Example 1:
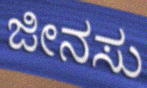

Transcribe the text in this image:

ಜೀನಸು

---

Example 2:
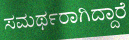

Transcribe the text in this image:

ಸಮರ್ಥರಾಗಿದ್ದಾರೆ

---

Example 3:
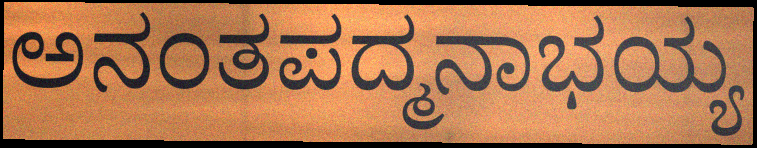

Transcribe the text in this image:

ಅನಂತಪದ್ಮನಾಭಯ್ಯ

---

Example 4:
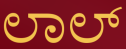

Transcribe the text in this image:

ಲಾಲ್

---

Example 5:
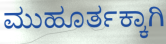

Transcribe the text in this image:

ಮುಹೂರ್ತಕ್ಕಾಗಿ